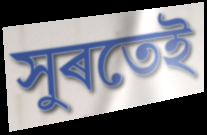
সুৰতেই